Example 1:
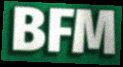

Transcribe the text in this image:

BFM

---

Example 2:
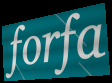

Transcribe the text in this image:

forfa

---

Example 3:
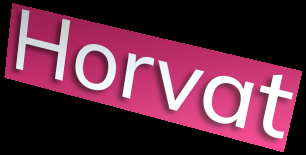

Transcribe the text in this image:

Horvat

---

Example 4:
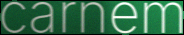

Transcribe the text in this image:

carnem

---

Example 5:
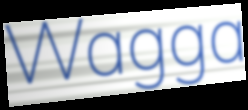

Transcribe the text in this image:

Wagga